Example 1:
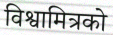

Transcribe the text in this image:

विश्वामित्रको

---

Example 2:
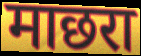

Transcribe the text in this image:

माछरा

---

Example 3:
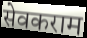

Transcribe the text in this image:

सेवकराम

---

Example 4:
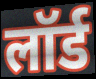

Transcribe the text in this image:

लॉर्ड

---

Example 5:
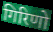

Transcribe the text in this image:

गिरिणो